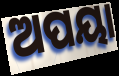
ଅପୟା